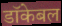
डॉकेबल